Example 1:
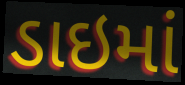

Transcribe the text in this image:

ડાઇમાં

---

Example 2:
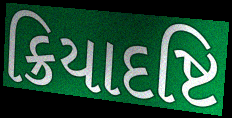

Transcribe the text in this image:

ક્રિયાદષ્ટિ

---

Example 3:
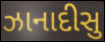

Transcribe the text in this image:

ઝાનાદીસુ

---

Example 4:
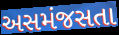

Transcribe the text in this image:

અસમંજસતા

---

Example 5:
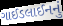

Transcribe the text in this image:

ગાઈડલાઈનનું